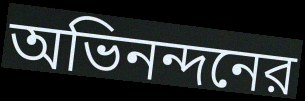
অভিনন্দনের